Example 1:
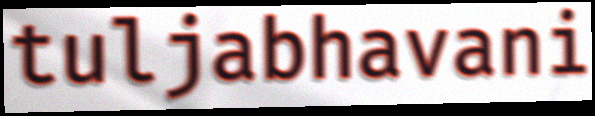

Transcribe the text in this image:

tuljabhavani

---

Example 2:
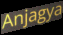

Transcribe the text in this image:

Anjagya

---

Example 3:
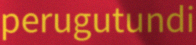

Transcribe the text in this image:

perugutundi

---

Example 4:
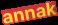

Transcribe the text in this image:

annak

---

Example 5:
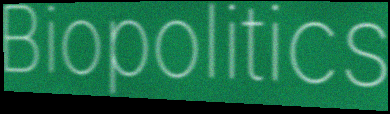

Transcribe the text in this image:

Biopolitics